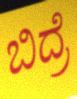
ಬಿದ್ರೆ